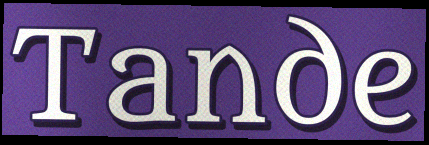
Tande